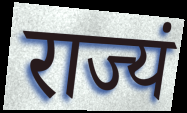
राज्यं